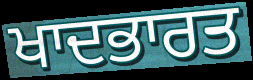
ਖਾਦਭਾਰਤ